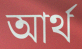
আৰ্থ